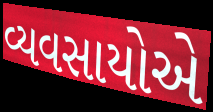
વ્યવસાયોએ